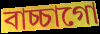
বাচ্চাগো